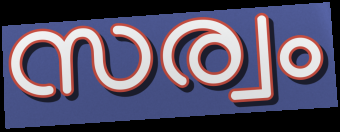
സര്വം